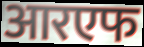
आरएफ